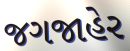
જગજાહેર